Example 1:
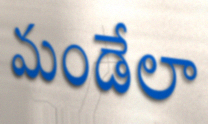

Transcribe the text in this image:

మండేలా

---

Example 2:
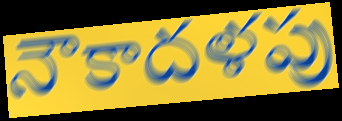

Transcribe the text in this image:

నౌకాదళపు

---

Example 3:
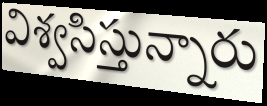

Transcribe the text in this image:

విశ్వసిస్తున్నారు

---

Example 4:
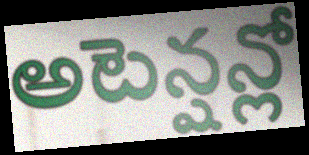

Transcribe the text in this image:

అటెన్షన్లో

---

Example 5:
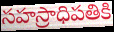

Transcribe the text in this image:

సహస్రాధిపతికి